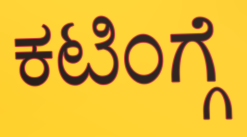
ಕಟಿಂಗ್ಗೆ